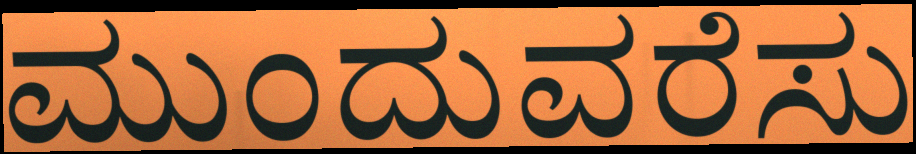
ಮುಂದುವರೆಸು